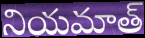
నియమాత్